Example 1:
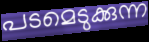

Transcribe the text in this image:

പടമെടുക്കുന്ന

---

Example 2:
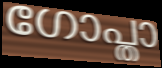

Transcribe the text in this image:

ഗോപ്താ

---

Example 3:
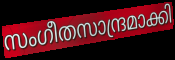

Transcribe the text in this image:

സംഗീതസാന്ദ്രമാക്കി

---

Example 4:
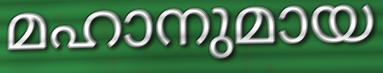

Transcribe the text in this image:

മഹാനുമായ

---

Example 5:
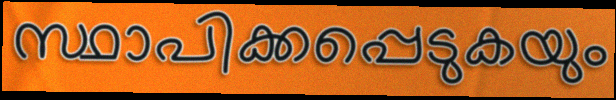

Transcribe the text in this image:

സ്ഥാപിക്കപ്പെടുകയും